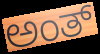
ಅಂತ್